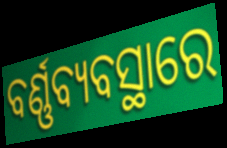
ବର୍ଣ୍ଣବ୍ୟବସ୍ଥାରେ